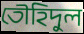
তৌহিদুল